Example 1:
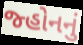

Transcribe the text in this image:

જ્હોનનું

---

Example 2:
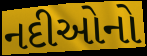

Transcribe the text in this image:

નદીઓનો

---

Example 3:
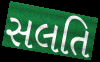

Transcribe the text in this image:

સલતિ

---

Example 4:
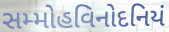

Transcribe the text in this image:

સમ્મોહવિનોદનિયં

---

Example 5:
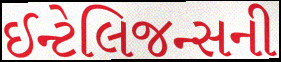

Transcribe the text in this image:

ઈન્ટેલિજન્સની